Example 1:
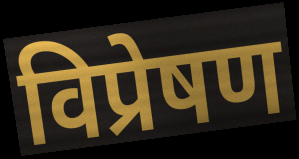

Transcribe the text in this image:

विप्रेषण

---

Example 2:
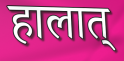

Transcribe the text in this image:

हालात्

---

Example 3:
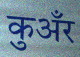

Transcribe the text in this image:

कुअँर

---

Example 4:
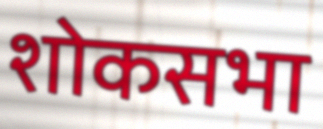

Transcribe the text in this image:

शोकसभा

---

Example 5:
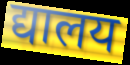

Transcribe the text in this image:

द्यालय